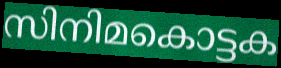
സിനിമകൊട്ടക